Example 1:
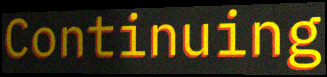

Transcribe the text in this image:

Continuing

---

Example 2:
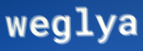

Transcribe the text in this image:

weglya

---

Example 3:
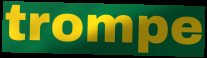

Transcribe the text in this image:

trompe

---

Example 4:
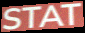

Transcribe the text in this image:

STAT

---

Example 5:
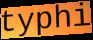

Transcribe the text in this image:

typhi